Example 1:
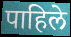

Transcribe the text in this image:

पाहिले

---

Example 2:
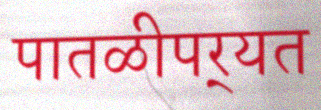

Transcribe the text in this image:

पातळीपर्यत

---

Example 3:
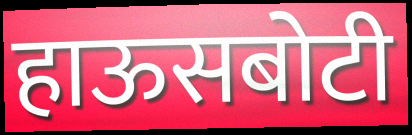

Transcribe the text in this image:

हाऊसबोटी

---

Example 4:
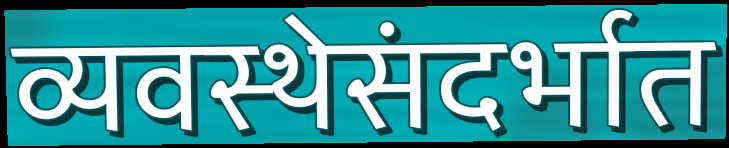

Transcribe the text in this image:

व्यवस्थेसंदर्भात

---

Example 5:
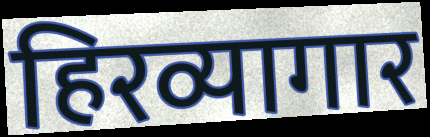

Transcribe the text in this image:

हिरव्यागार